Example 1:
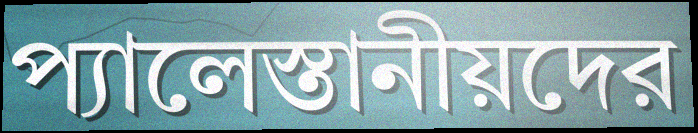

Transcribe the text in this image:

প্যালেস্তানীয়দের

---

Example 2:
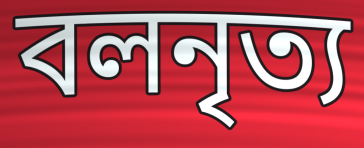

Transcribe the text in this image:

বলনৃত্য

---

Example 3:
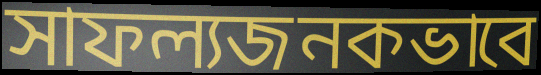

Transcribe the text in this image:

সাফল্যজনকভাবে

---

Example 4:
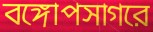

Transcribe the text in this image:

বঙ্গোপসাগরে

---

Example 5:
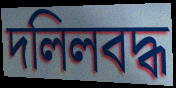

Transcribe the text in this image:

দলিলবদ্ধ